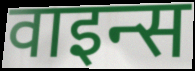
वाइन्स